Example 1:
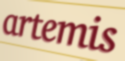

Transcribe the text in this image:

artemis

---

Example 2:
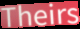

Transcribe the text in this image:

Theirs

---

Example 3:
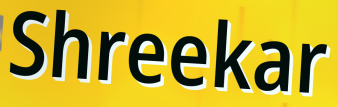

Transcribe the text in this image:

Shreekar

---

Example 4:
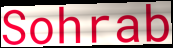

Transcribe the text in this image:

Sohrab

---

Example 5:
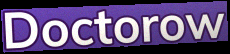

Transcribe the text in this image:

Doctorow